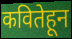
कवितेहून